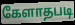
கேளாதபடி